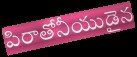
పిరాతోనీయుడైన